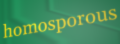
homosporous